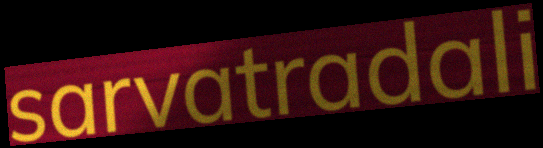
sarvatradali